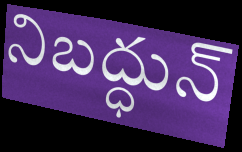
నిబద్ధున్